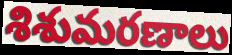
శిశుమరణాలు